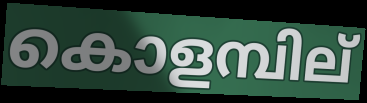
കൊളമ്പില്